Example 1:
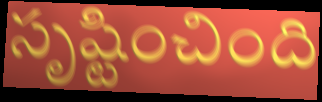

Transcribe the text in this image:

సృష్టించింది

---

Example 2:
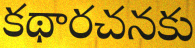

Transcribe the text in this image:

కథారచనకు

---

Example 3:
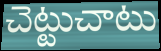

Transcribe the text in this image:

చెట్టుచాటు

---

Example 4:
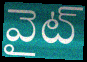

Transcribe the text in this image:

వైట్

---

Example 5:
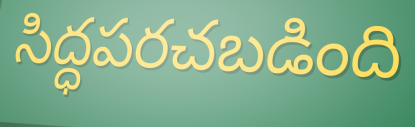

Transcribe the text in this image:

సిద్ధపరచబడింది